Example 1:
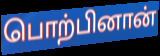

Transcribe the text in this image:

பொற்பினான்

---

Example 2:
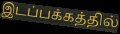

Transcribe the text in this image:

இடப்பக்கத்தில்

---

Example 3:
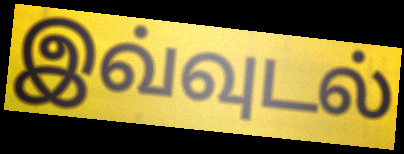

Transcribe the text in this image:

இவ்வுடல்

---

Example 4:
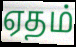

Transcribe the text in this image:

ஏதம்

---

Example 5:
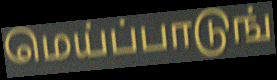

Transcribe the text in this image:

மெய்ப்பாடுங்